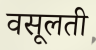
वसूलती